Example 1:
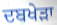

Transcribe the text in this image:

ਦਬਖੇੜਾ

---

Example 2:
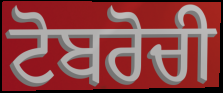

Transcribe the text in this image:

ਟੋਬਰੋਚੀ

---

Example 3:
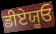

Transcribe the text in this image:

ਡੀਏਯੂਓ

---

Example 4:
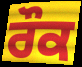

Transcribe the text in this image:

ਰੌਕ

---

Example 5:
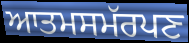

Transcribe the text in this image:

ਆਤਮਸਮੱਰਪਣ